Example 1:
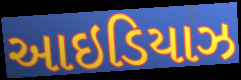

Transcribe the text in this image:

આઇડિયાઝ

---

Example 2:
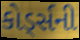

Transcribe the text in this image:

કોર્ડ્સની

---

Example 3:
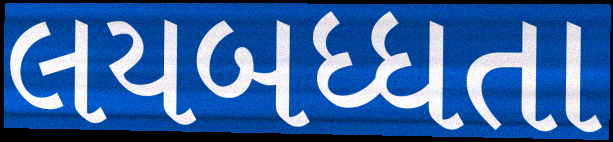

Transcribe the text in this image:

લયબધ્ધતા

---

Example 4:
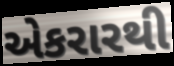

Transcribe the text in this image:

એકરારથી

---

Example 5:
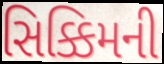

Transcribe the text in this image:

સિક્કિમની